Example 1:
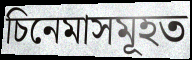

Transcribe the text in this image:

চিনেমাসমূহত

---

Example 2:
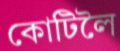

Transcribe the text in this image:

কোটিলৈ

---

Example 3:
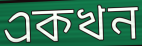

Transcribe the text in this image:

একখন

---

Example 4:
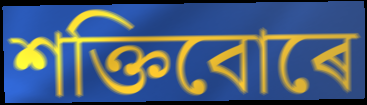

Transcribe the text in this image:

শক্তিবোৰে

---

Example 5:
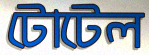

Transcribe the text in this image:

টোটেল